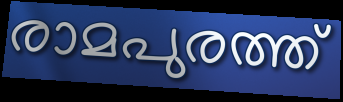
രാമപുരത്ത്